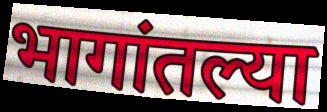
भागांतल्या